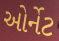
ઓર્નેટ